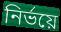
নিৰ্ভয়ে